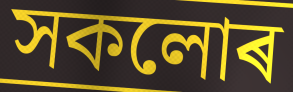
সকলোৰ